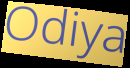
Odiya